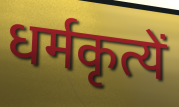
धर्मकृत्यें